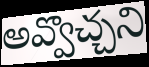
అవ్వొచ్చని